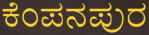
ಕೆಂಪನಪುರ